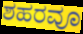
ಶಹರವೂ